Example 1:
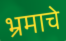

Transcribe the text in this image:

भ्रमाचे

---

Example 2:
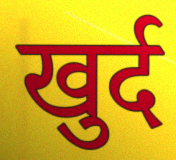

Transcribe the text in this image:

खुर्द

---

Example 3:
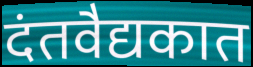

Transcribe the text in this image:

दंतवैद्यकात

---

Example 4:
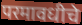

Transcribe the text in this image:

परमावधीचे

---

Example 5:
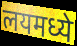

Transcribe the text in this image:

लयमध्ये